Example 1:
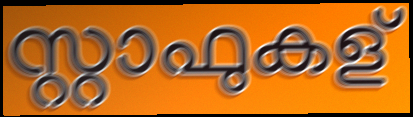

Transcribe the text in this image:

സ്റ്റാഫുകള്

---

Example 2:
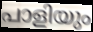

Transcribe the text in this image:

പാളിയും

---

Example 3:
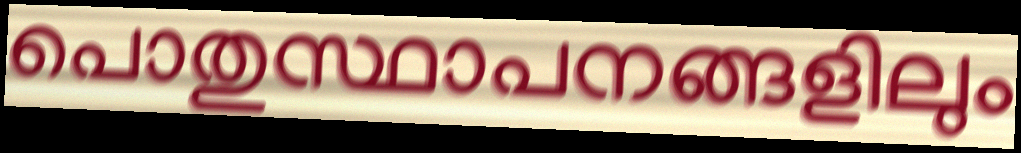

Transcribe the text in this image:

പൊതുസ്ഥാപനങ്ങളിലും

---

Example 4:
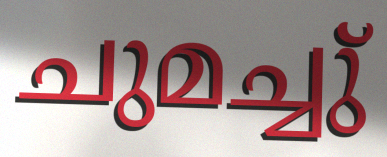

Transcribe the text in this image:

ചുമച്ചു്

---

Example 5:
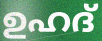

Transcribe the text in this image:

ഉഹദ്